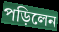
পড়িলেন